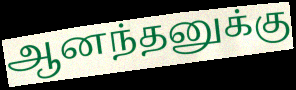
ஆனந்தனுக்கு